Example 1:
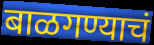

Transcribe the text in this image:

बाळगण्याचं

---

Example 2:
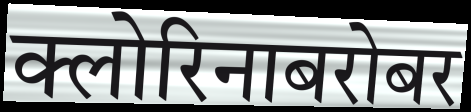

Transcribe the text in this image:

क्लोरिनाबरोबर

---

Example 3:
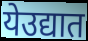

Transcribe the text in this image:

येउद्यात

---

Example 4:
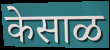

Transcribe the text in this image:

केसाळ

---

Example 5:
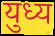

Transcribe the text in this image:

युध्य